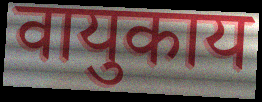
वायुकाय